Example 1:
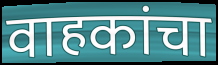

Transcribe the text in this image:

वाहकांचा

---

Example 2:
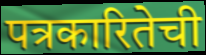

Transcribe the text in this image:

पत्रकारितेची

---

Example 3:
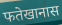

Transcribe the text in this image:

फतेखानास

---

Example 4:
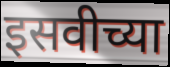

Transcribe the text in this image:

इसवीच्या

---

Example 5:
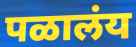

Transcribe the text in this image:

पळालंय